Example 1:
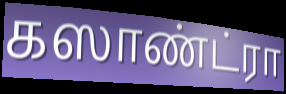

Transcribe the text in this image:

கஸாண்ட்ரா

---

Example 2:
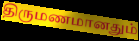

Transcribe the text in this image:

திருமணமானதும்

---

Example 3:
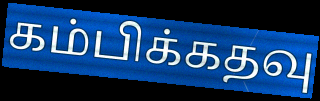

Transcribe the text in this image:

கம்பிக்கதவு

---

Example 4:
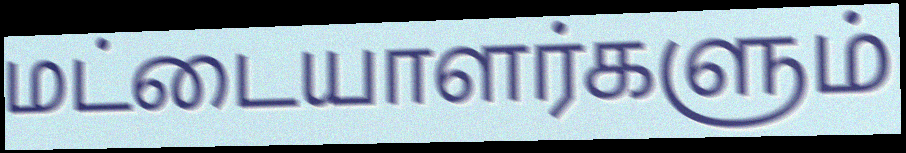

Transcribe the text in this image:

மட்டையாளர்களும்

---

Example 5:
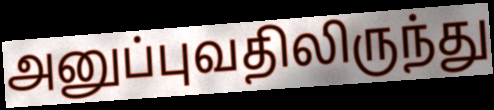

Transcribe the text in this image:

அனுப்புவதிலிருந்து